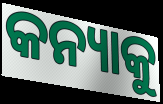
କନ୍ୟାକୁ